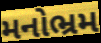
મનોભ્રમ